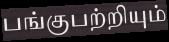
பங்குபற்றியும்